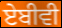
ਏਬੀਵੀ